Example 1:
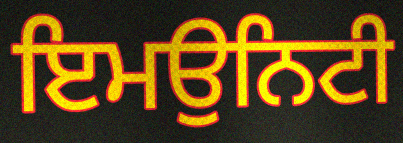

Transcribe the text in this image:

ਇਮਉਨਿਟੀ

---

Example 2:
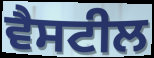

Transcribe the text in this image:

ਵੈਸਟੀਲ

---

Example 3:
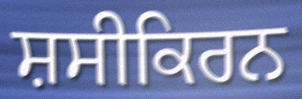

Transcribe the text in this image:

ਸ਼ਸੀਕਿਰਨ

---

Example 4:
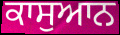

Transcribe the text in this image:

ਕਾਸੁਆਨ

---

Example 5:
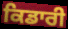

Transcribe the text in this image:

ਕਿਡਾਰੀ